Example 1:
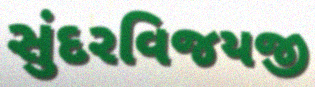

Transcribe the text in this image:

સુંદરવિજયજી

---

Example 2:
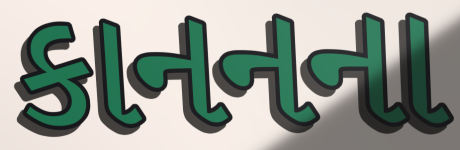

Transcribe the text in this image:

કાનનના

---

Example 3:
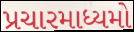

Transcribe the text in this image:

પ્રચારમાધ્યમો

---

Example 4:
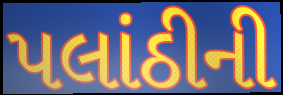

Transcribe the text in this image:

પલાંઠીની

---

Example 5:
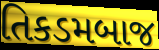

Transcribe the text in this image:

તિકડમબાજ